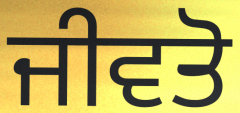
ਜੀਵਤੋ